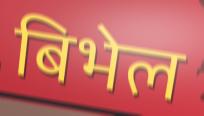
बिभेल